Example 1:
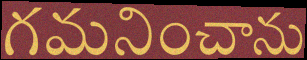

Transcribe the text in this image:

గమనించాను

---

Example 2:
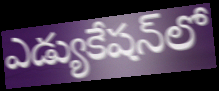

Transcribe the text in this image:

ఎడ్యుకేషన్‌లో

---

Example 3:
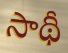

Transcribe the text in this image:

సాథీ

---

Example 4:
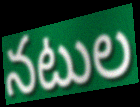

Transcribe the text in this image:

నటుల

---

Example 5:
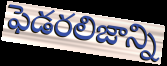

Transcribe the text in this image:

ఫెడరలిజాన్ని